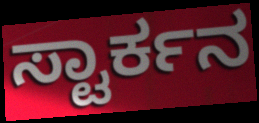
ಸ್ಟಾರ್ಕನ